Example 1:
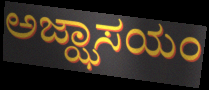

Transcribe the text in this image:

ಅಜ್ಝಾಸಯಂ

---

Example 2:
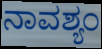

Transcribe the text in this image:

ನಾವಶ್ಯಂ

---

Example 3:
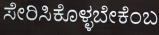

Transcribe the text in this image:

ಸೇರಿಸಿಕೊಳ್ಳಬೇಕೆಂಬ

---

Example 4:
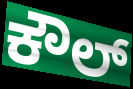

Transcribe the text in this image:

ಕೌಲ್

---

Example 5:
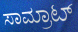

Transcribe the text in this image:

ಸಾಮ್ರಾಟ್